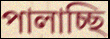
পালাচ্ছি